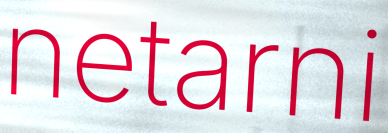
netarni